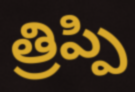
త్రిప్పి